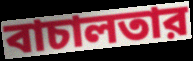
বাচালতার